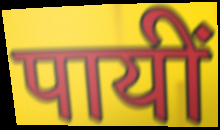
पायीं